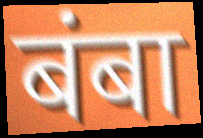
बंबा